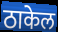
ठाकेल